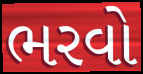
ભરવો